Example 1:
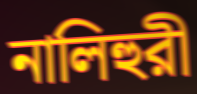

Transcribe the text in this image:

নালিহুরী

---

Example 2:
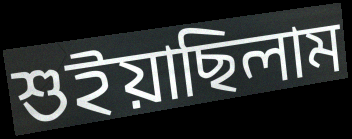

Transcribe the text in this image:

শুইয়াছিলাম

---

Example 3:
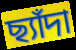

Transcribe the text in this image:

ছ্যাঁদা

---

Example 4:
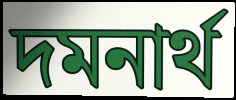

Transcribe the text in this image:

দমনার্থ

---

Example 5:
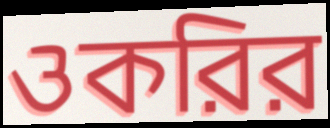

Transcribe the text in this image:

ওকরির